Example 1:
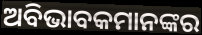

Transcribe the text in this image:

ଅବିଭାବକମାନଙ୍କର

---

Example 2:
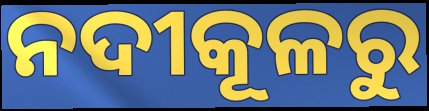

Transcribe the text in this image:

ନଦୀକୂଳରୁ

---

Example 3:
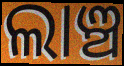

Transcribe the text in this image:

ଲାଞ୍ଚ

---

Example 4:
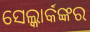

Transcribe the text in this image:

ସେଲ୍କାର୍କଙ୍କର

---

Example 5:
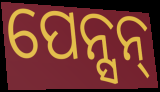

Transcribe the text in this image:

ପେନ୍ସନ୍